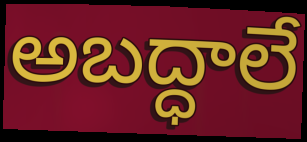
అబద్ధాలే